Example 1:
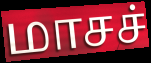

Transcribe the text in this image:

மாசச்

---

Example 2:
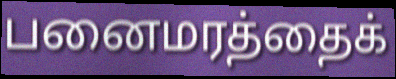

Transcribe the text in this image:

பனைமரத்தைக்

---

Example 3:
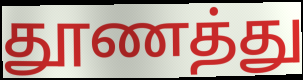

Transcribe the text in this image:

தூணத்து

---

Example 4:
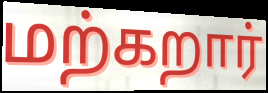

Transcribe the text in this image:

மற்கறார்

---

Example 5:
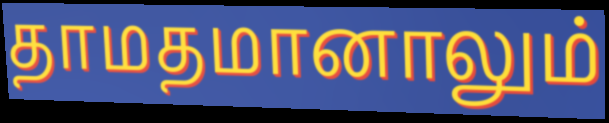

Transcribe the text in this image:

தாமதமானாலும்